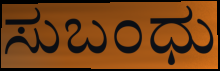
ಸುಬಂಧು